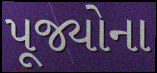
પૂજ્યોના